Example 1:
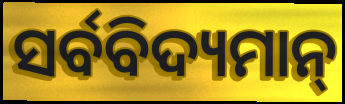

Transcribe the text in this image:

ସର୍ବବିଦ୍ୟମାନ୍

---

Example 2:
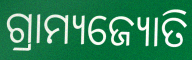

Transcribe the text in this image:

ଗ୍ରାମ୍ୟଜ୍ୟୋତି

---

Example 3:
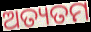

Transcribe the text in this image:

ଅତ୍ୟତମ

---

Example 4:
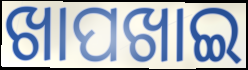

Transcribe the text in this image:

ଖାପଖାଇ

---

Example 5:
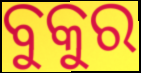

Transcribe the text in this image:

ବୁକୁର